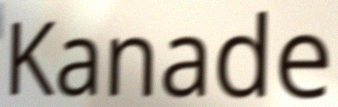
Kanade